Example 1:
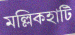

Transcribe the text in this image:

মল্লিকহাটি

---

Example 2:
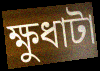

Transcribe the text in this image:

ক্ষুধাটা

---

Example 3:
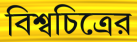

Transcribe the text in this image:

বিশ্বচিত্রের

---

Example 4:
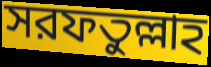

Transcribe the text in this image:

সরফতুল্লাহ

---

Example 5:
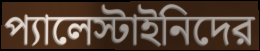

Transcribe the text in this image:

প্যালেস্টাইনিদের